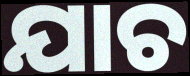
ଯାଚ